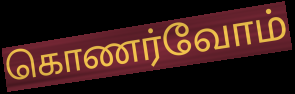
கொணர்வோம்